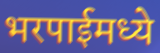
भरपाईमध्ये